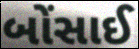
બોંસાઈ